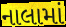
નાલામાં